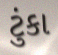
ટુંકા